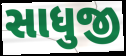
સાધુજી